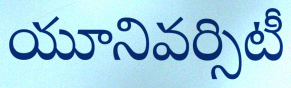
యూనివర్సిటీ